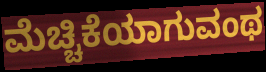
ಮೆಚ್ಚಿಕೆಯಾಗುವಂಥ